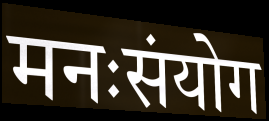
मनःसंयोग